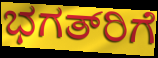
ಭಗತ್‍ರಿಗೆ